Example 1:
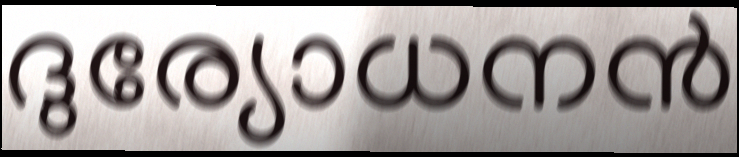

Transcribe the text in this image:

ദുര്യോധനൻ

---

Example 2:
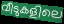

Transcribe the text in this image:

വീടുകളിലെ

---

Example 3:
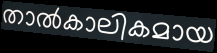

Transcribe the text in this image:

താൽകാലികമായ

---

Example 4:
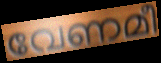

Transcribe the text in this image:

വേണമീ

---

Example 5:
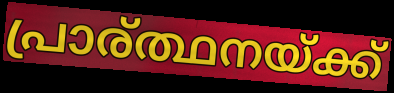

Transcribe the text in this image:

പ്രാര്ത്ഥനയ്ക്ക്